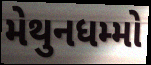
મેથુનધમ્મો